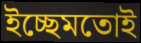
ইচ্ছেমতোই